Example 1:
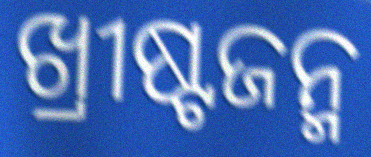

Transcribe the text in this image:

ଖ୍ରୀଷ୍ଟଜନ୍ମ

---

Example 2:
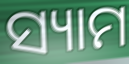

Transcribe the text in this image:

ସ୍ୟାମ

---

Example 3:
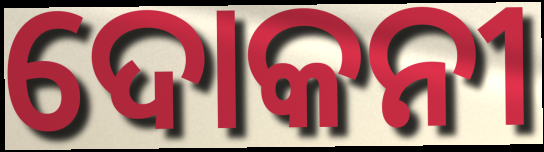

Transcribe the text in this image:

ଦୋକନୀ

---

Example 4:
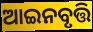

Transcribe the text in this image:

ଆଇନବୃତ୍ତି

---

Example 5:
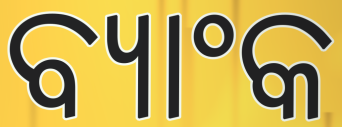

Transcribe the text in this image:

ବ୍ୟାଂକ